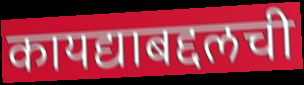
कायद्याबद्दलची